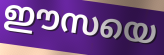
ഈസയെ